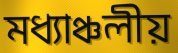
মধ্যাঞ্চলীয়